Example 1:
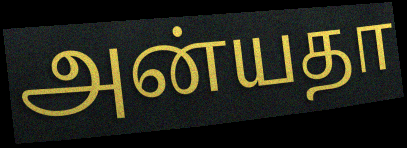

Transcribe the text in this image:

அன்யதா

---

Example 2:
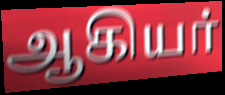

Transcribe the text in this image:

ஆகியர்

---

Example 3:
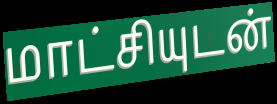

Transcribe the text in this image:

மாட்சியுடன்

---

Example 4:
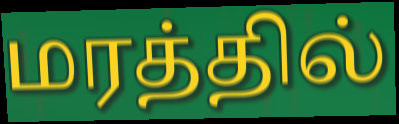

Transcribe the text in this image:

மரத்தில்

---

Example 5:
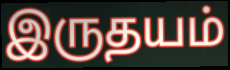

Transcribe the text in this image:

இருதயம்